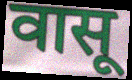
वासू